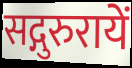
सद्गुरुरायें